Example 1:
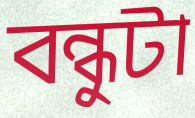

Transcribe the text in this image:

বন্ধুটা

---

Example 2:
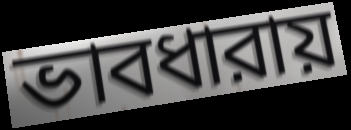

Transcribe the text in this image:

ভাবধারায়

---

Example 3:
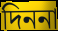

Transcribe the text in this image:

দিননা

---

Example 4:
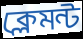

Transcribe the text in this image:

ক্লেমন্ট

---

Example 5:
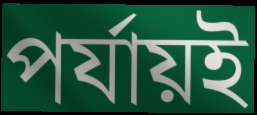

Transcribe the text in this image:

পর্যায়ই